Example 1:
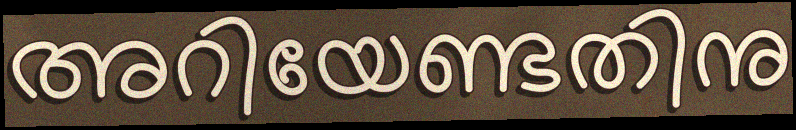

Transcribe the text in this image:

അറിയേണ്ടതിനു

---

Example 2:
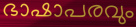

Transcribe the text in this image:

ഭാഷാപരവും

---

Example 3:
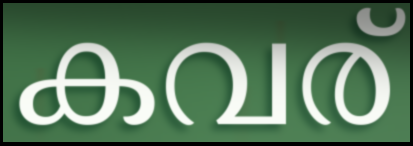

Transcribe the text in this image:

കവര്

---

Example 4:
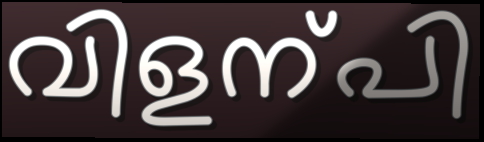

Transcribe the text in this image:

വിളന്പി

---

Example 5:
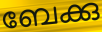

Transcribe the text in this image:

ബേക്കു